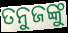
ତନୁଜଙ୍କୁ